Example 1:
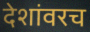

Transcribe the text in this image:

देशांवरच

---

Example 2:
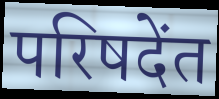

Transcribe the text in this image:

परिषदेंत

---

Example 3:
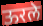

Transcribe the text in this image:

ऊरले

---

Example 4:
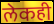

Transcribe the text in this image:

लेकही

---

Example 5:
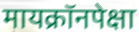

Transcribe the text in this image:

मायक्रॉनपेक्षा